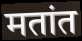
मतांत